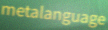
metalanguage